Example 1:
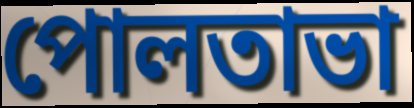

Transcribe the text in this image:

পোলতাভা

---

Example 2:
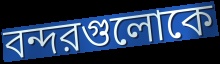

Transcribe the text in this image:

বন্দরগুলোকে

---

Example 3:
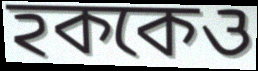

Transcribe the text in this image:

হককেও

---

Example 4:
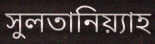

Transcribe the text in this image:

সুলতানিয়্যাহ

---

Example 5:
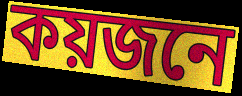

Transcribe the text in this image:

কয়জনে